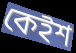
কেইশ